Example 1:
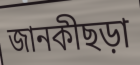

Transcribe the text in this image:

জানকীছড়া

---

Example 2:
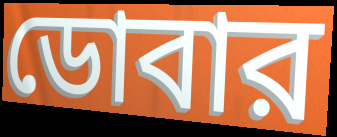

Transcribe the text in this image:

ডোবার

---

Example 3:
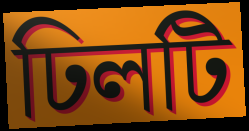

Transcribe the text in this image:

ঢিলটি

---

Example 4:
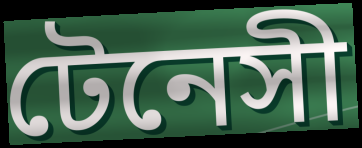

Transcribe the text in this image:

টেনেসী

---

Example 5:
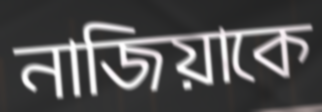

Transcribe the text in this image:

নাজিয়াকে